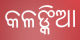
କଳଙ୍କିଆ